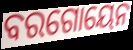
ବରଗୋୟେନ